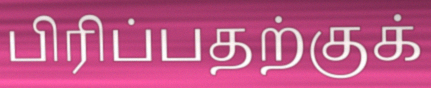
பிரிப்பதற்குக்